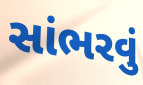
સાંભરવું